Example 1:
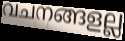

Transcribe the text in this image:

വചനങ്ങളല്ല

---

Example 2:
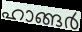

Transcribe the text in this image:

ഹാങ്ങർ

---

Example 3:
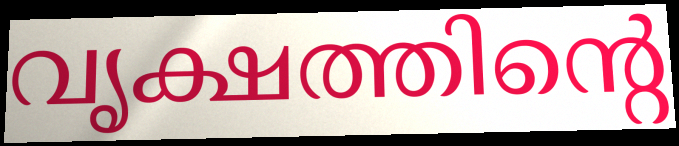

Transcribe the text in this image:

വൃക്ഷത്തിന്റെ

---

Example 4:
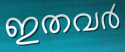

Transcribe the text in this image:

ഇതവർ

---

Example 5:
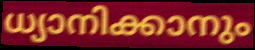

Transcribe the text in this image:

ധ്യാനിക്കാനും